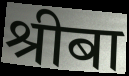
श्रीबा